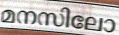
മനസിലോ